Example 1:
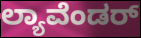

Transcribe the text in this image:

ಲ್ಯಾವೆಂಡರ್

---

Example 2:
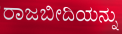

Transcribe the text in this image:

ರಾಜಬೀದಿಯನ್ನು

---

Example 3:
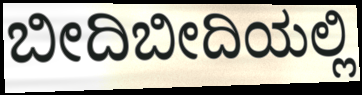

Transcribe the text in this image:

ಬೀದಿಬೀದಿಯಲ್ಲಿ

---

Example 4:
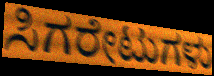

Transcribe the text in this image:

ಸಿಗರೇಟುಗಳು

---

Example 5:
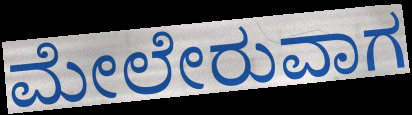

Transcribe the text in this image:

ಮೇಲೇರುವಾಗ